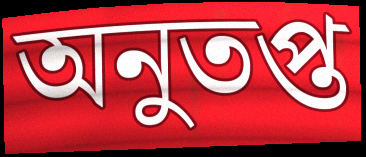
অনুতপ্ত